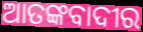
ଆତଙ୍କବାଦୀର